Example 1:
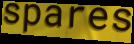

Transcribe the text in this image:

spares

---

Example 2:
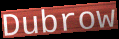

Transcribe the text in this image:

Dubrow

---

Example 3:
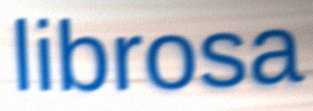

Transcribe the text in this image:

librosa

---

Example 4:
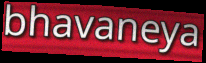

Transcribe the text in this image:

bhavaneya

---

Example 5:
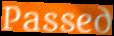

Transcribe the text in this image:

Passed